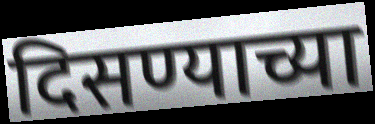
दिसण्याच्या